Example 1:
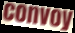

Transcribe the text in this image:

convoy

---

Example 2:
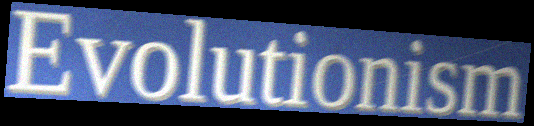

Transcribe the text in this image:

Evolutionism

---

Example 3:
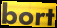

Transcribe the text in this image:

bort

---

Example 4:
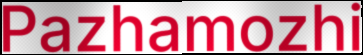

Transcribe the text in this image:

Pazhamozhi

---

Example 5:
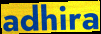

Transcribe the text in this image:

adhira